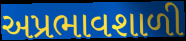
અપ્રભાવશાળી